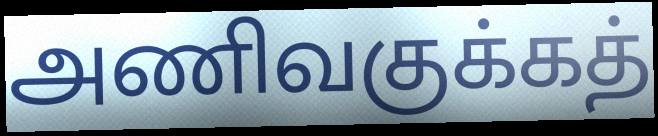
அணிவகுக்கத்